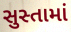
સુસ્તામાં